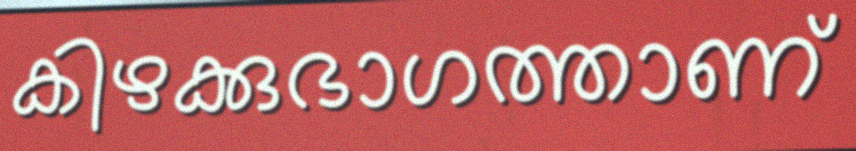
കിഴക്കുഭാഗത്താണ്